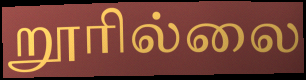
றூரில்லை